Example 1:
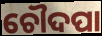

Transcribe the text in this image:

ଚୌଦପା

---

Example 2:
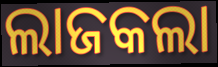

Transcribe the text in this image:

ଲାଜକଲା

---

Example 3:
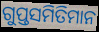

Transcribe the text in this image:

ଗୁପ୍ତସମିତିମାନ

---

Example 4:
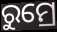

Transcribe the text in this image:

ରୁମ୍ରେ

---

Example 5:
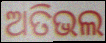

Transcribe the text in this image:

ଅତିଭଲ